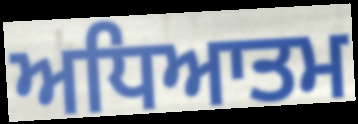
ਅਧਿਆਤਮ